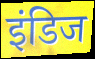
इंडिज